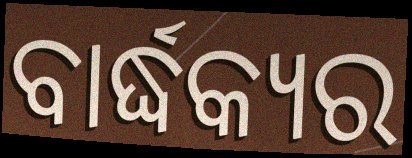
ବାର୍ଦ୍ଧକ୍ୟର